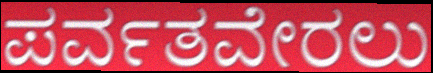
ಪರ್ವತವೇರಲು